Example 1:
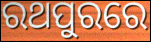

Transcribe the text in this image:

ରଥପୁରରେ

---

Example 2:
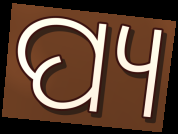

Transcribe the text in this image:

ପ୍ୟ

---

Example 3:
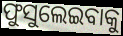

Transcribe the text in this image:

ଫୁସୁଲେଇବାକୁ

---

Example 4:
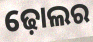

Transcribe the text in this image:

ଢ଼ୋଲର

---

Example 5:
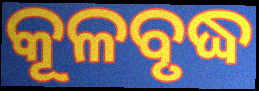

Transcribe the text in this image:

କୂଳବୃଦ୍ଧ